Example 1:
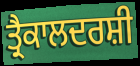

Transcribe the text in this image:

ਤ੍ਰੈਕਾਲਦਰਸ਼ੀ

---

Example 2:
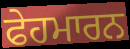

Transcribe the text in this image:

ਫੇਹਮਾਰਨ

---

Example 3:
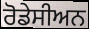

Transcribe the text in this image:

ਰੋਡੇਸੀਅਨ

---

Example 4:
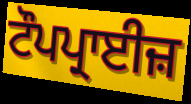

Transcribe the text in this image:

ਟੌਪਪ੍ਰਾਈਜ਼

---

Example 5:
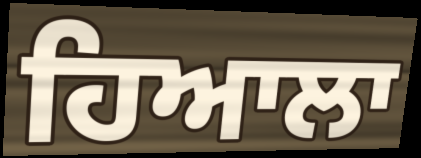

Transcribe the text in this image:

ਹਿਆਲਾ